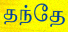
தந்தே